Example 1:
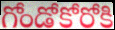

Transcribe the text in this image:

గోండోకోరోకి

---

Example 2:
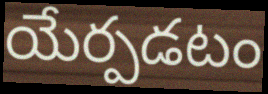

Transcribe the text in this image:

యేర్పడటం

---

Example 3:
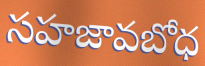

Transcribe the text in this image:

సహజావబోధ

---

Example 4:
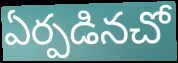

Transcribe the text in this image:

ఏర్పడినచో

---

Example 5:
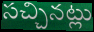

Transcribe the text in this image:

సచ్చినట్లు